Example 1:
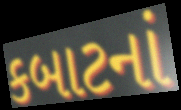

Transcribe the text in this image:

કબાટનાં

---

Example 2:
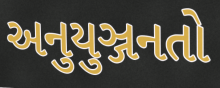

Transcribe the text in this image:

અનુયુઞ્જનતો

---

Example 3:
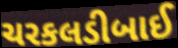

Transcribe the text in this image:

ચરકલડીબાઈ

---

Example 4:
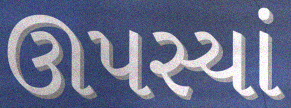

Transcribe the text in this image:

ઊપસ્યાં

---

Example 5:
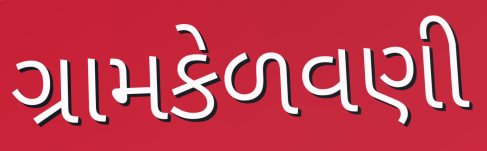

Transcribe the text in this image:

ગ્રામકેળવણી